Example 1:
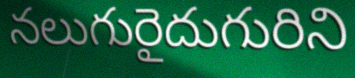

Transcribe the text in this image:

నలుగురైదుగురిని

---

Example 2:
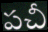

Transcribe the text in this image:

పచీ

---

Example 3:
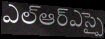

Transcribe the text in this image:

ఎల్ఆర్ఎస్పై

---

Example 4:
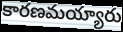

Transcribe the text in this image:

కారణమయ్యారు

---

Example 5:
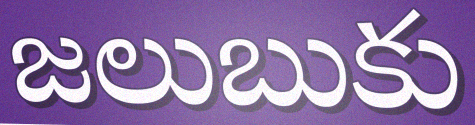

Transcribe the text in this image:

జలుబుకు